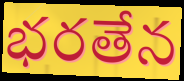
భరతేన